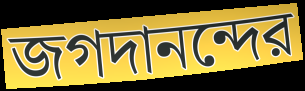
জগদানন্দের